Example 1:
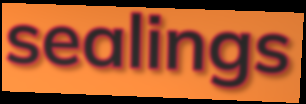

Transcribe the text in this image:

sealings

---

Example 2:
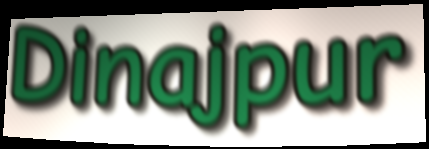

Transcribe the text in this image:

Dinajpur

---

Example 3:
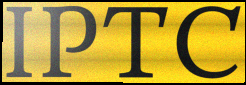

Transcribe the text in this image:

IPTC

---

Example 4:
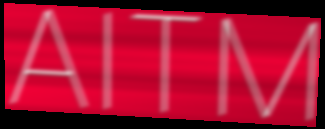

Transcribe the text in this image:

AITM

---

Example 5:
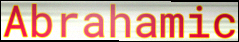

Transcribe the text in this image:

Abrahamic